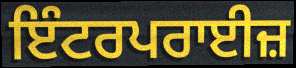
ਇੰਟਰਪਰਾਈਜ਼